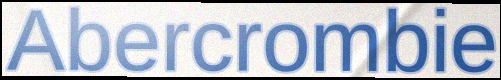
Abercrombie